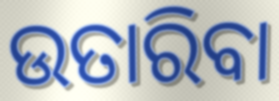
ଉତାରିବା